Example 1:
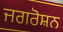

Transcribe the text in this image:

ਜਗਰੋਸ਼ਨ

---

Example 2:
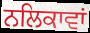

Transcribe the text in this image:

ਨਲਿਕਾਵਾਂ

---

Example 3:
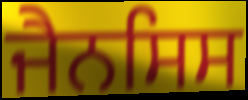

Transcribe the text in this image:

ਜੈਨਸਿਸ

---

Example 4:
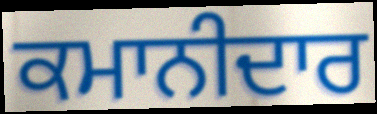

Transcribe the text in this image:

ਕਮਾਨੀਦਾਰ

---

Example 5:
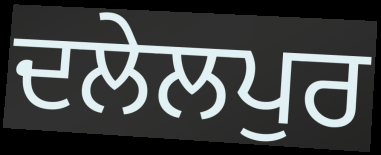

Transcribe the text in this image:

ਦਲੇਲਪੁਰ